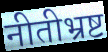
नीतीभ्रष्ट